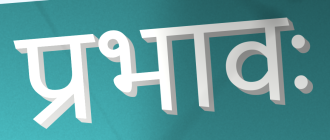
प्रभावः